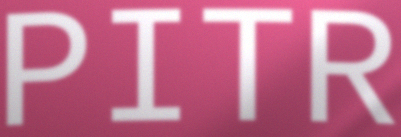
PITR